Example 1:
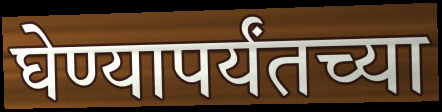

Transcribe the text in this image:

घेण्यापर्यंतच्या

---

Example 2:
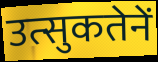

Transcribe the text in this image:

उत्सुकतेनें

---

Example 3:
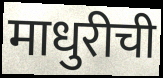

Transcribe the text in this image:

माधुरीची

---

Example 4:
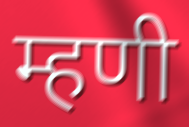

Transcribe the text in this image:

म्हणी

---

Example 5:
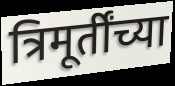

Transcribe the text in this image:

त्रिमूर्तींच्या